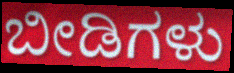
ಬೀಡಿಗಳು